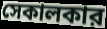
সেকালকার